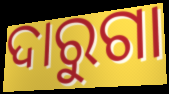
ଦାରୁଗା